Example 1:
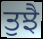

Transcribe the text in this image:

ਤੁਝੈ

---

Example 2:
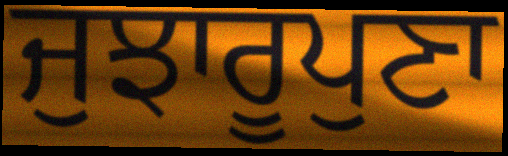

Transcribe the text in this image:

ਜੁਝਾਰੂਪੁਣਾ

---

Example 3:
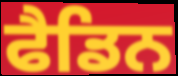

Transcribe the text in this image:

ਫੈਡਿਨ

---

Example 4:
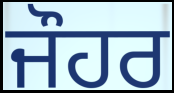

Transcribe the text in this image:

ਜੌਹਰ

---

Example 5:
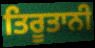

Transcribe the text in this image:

ਤਿਰੂਤਾਨੀ